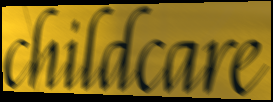
childcare